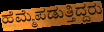
ಹೆಮ್ಮೆಪಡುತ್ತಿದ್ದರು